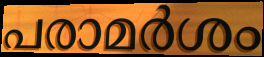
പരാമർശം